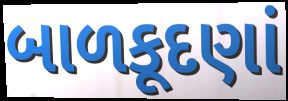
બાળકૂદણાં